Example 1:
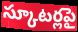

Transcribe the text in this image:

స్కూటర్లపై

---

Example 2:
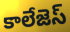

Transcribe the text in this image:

కాలేజెస్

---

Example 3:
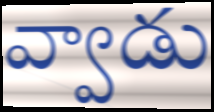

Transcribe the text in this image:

వ్వాడు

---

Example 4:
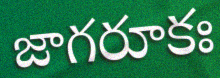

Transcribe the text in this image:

జాగరూకః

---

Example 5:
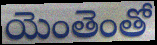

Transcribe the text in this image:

యెంతెంతో